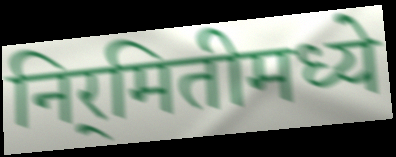
निर्मितीमध्ये